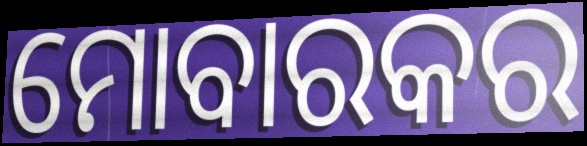
ମୋବାରକର